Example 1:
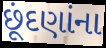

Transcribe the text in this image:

છૂંદણાંના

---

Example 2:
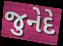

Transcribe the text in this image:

જુનેદે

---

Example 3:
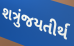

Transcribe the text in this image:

શત્રુંજયતીર્થ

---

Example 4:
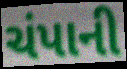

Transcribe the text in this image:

ચંપાની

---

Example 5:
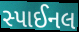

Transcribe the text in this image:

સ્પાઈનલ